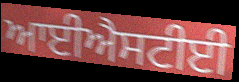
ਆਈਐਸਟੀਈ